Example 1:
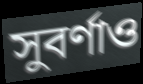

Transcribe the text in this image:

সুবর্ণাও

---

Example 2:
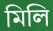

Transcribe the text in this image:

মিলি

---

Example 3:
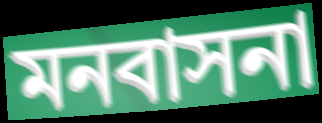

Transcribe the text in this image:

মনবাসনা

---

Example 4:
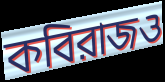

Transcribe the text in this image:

কবিরাজও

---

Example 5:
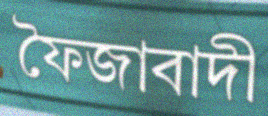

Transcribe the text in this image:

ফৈজাবাদী